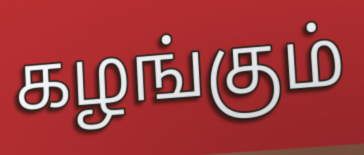
கழங்கும்